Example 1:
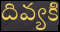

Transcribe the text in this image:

దివ్యకి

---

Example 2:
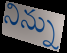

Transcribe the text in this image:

నిన్ను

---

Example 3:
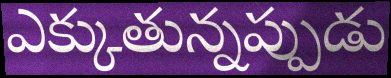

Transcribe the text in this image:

ఎక్కుతున్నప్పుడు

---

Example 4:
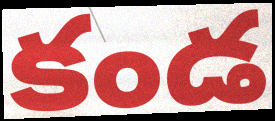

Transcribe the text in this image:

కండ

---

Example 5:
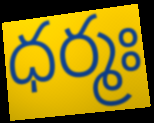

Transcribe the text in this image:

ధర్మః